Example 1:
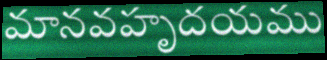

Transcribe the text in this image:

మానవహృదయము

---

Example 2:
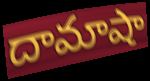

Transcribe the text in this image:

దామాషా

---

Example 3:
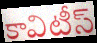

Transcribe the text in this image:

కావిటీస్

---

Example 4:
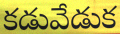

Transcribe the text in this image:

కడువేడుక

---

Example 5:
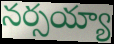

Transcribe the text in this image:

నర్సయ్యా